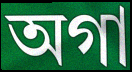
অগা